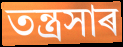
তন্ত্ৰসাৰ